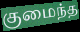
குமைந்த